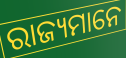
ରାଜ୍ୟମାନେ